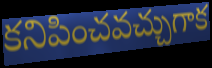
కనిపించవచ్చుగాక